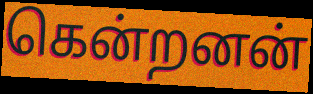
கென்றனன்